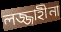
লজ্জাহীনা